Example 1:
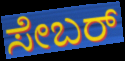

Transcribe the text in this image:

ಸೇಬರ್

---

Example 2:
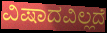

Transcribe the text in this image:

ವಿಷಾದವಿಲ್ಲದೆ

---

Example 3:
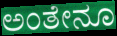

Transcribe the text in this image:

ಅಂತೇನೂ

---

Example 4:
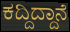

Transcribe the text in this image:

ಕದ್ದಿದ್ದಾನೆ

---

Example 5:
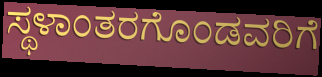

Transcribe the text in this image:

ಸ್ಥಳಾಂತರಗೊಂಡವರಿಗೆ